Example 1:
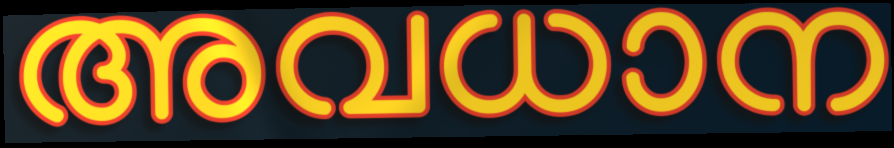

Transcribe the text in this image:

അവധാന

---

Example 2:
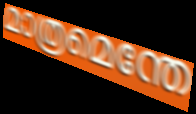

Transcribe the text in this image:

മാത്രമെന്തേ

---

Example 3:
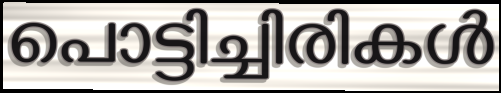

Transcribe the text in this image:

പൊട്ടിച്ചിരികൾ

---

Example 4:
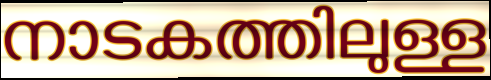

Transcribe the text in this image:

നാടകത്തിലുള്ള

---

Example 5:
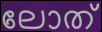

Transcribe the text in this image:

ലോത്